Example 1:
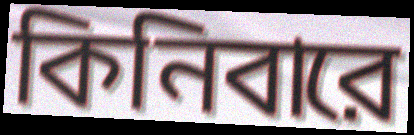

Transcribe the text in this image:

কিনিবারে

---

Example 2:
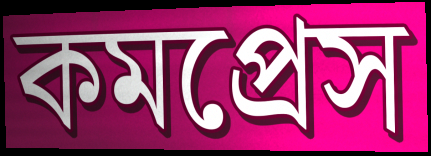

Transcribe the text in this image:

কমপ্রেস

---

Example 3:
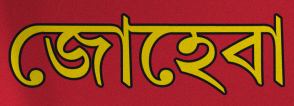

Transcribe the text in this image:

জোহেবা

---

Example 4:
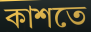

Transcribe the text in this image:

কাশতে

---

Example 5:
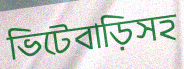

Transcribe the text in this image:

ভিটেবাড়িসহ